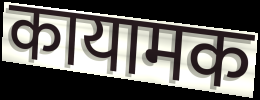
कायामक